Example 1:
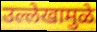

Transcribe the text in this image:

उल्लेखामुळे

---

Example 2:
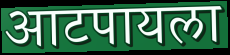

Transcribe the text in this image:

आटपायला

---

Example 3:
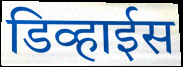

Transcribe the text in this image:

डिव्हाईस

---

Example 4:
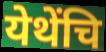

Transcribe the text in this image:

येथेंचि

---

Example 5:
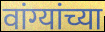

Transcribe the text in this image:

वांग्यांच्या